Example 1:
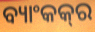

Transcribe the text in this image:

ବ୍ୟାଂକକ୍‍ର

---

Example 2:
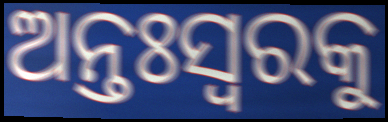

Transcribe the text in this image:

ଅନ୍ତଃସ୍ୱରକୁ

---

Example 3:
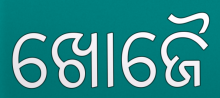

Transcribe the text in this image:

ଖୋଜୈ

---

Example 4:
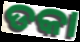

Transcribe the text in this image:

ଡକା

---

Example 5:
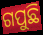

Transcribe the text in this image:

ଗପୁଛି